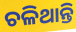
ଚଳିଥାନ୍ତି